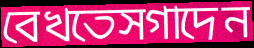
বেখতেসগাদেন